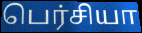
பெர்சியா